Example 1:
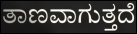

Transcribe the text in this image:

ತಾಣವಾಗುತ್ತದೆ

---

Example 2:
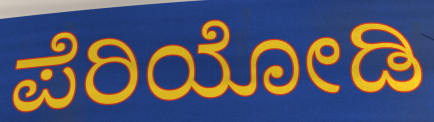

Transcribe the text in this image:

ಪೆರಿಯೋಡಿ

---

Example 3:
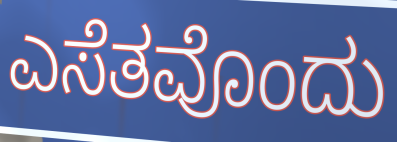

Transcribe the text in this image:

ಎಸೆತವೊಂದು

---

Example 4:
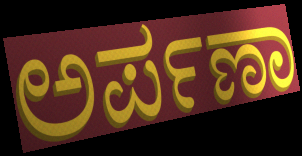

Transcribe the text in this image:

ಅರ್ಪಣಾ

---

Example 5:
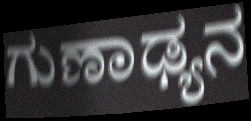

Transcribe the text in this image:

ಗುಣಾಢ್ಯನ